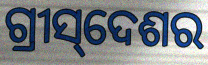
ଗ୍ରୀସ୍‌ଦେଶର